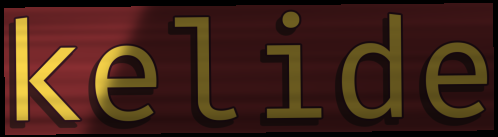
kelide